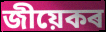
জীয়েকৰ